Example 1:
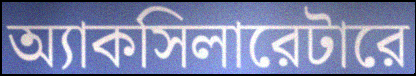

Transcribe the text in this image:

অ্যাকসিলারেটারে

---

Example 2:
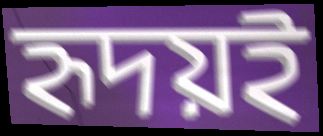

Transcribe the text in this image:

হৃদয়ই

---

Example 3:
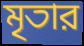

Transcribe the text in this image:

মৃতার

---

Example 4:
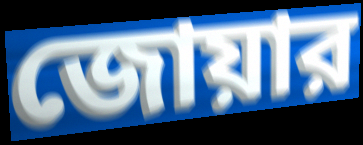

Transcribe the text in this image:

জোয়ার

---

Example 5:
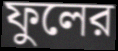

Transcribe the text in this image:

ফুলের